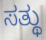
ಸತ್ಥು